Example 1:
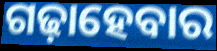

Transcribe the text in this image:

ଗଢ଼ାହେବାର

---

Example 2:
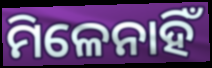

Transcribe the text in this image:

ମିଳେନାହିଁ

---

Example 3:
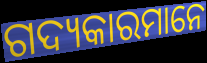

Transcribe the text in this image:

ଗଦ୍ୟକାରମାନେ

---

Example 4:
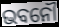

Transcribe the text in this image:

ଭବନୌ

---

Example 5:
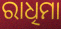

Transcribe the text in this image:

ରାଧିମା